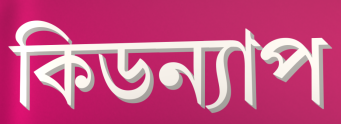
কিডন্যাপ